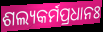
ଶଲ୍ୟକର୍ମପ୍ରଧାନଃ